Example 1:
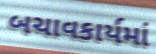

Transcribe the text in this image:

બચાવકાર્યમાં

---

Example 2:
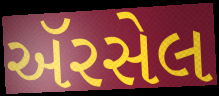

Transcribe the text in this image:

ઍરસેલ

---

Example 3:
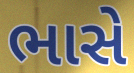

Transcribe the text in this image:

ભાસે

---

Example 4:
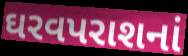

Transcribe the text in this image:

ઘરવપરાશનાં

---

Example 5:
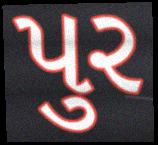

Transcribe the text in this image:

પુર